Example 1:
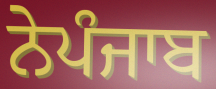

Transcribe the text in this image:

ਨੇਪੰਜਾਬ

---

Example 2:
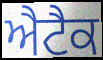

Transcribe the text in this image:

ਐਟੈਕ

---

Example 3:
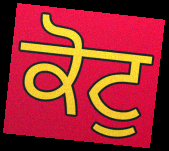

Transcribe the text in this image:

ਕੋਟੁ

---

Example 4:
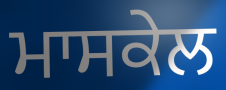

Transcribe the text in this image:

ਮਾਸਕੇਲ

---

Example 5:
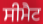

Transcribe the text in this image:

ਸੀਮੈਟ